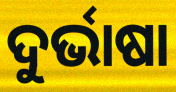
ଦୁର୍ଭାଷା